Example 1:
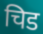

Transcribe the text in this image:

चिड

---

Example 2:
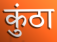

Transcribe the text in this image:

कुंठा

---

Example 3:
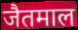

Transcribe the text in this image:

जैतमाल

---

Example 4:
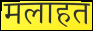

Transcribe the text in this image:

मलाहत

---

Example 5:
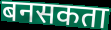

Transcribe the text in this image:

बनसकता